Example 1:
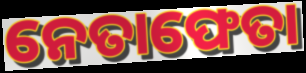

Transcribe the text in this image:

ନେତାଫେତା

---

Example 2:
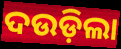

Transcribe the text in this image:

ଦଉଡ଼ିଲା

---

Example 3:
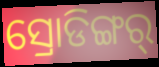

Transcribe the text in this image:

ସ୍ରୋଡିଙ୍ଗର୍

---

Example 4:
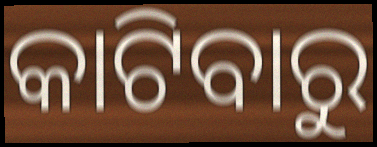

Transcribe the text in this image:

କାଟିବାରୁ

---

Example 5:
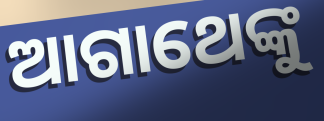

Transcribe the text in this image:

ଆଗାଥେଙ୍କୁ